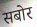
सबोर